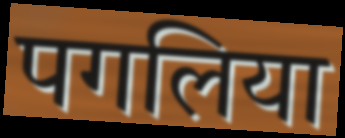
पगलिया